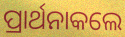
ପ୍ରାର୍ଥନାକଲେ